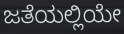
ಜತೆಯಲ್ಲಿಯೇ